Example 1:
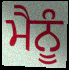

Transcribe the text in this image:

ਮੈਨੂੰ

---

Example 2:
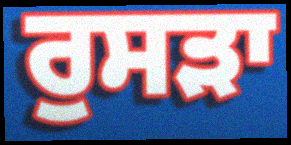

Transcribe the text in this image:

ਰੁਸੜਾ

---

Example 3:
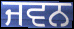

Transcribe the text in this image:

ਜਵਨ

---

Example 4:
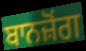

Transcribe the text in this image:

ਬਾਨਜ਼ੋਂਗ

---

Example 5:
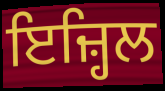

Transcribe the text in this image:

ਇਜ਼੍ਹਿਲ